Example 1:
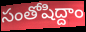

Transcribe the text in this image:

సంతోషిద్దాం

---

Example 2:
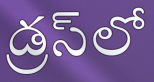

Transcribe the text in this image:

డ్రస్‌లో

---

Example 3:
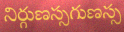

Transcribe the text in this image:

నిర్గుణస్సగుణస్స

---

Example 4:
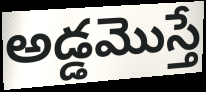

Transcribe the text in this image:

అడ్డమొస్తే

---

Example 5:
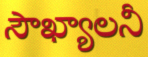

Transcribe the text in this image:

సౌఖ్యాలనీ